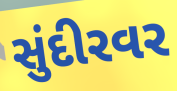
સુંદીરવર